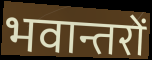
भवान्तरों